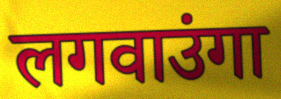
लगवाउंगा